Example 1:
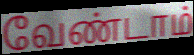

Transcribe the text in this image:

வேண்டாம்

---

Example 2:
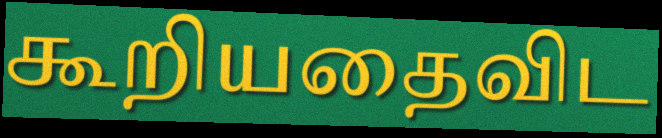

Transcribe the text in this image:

கூறியதைவிட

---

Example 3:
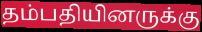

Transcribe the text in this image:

தம்பதியினருக்கு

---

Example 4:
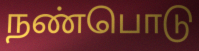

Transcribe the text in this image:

நண்பொடு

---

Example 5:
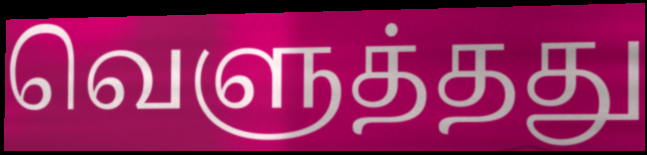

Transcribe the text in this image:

வெளுத்தது